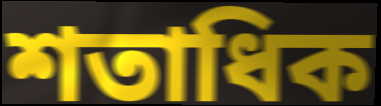
শতাধিক